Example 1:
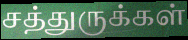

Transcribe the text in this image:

சத்துருக்கள்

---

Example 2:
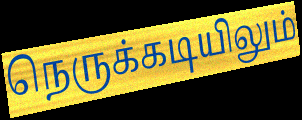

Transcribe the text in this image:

நெருக்கடியிலும்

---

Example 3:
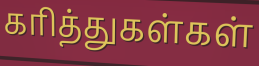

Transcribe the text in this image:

கரித்துகள்கள்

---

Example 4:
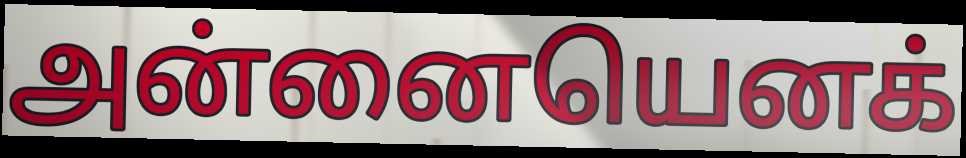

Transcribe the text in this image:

அன்னையெனக்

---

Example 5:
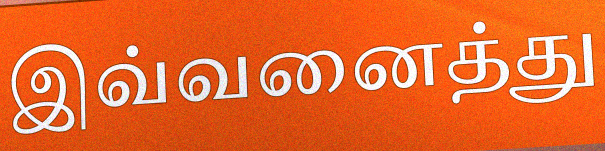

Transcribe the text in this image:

இவ்வனைத்து